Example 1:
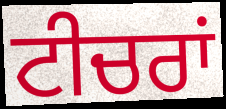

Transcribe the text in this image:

ਟੀਚਰਾਂ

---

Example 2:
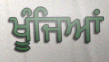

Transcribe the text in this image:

ਖੂੰਜਿਆਂ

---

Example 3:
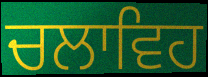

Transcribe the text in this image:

ਚਲਾਵਿਹ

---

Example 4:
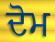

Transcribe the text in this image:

ਦੋਮ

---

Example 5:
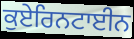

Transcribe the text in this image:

ਕੁਏਰਿਨਟਾਈਨ